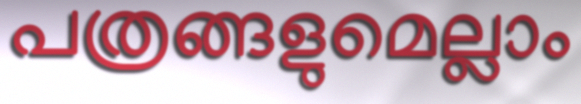
പത്രങ്ങളുമെല്ലാം